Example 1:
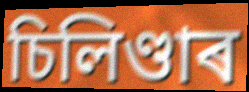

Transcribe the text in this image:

চিলিণ্ডাৰ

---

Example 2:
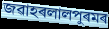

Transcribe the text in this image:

জৱাহৰলালপুৰমৰ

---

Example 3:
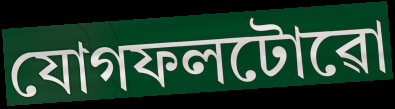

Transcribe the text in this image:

যোগফলটোৱো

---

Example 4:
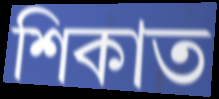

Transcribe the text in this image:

শিকাত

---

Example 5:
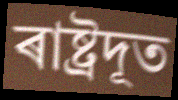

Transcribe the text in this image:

ৰাষ্ট্ৰদূত